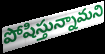
పోషిస్తున్నామని